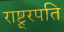
राष्ट्र्रपति